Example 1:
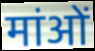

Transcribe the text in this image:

मांओं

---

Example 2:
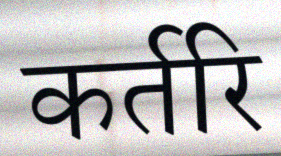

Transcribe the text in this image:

कर्तरि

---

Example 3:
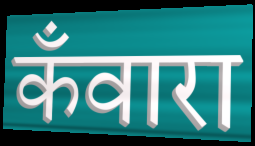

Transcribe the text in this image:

कँवारा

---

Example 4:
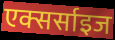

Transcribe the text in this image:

एक्सर्साइज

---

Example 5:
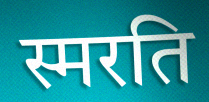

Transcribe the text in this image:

स्मरति